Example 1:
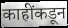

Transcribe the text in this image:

काहींकडून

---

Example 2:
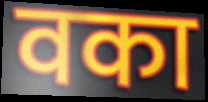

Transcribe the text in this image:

वका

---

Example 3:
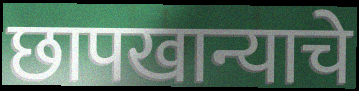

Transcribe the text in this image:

छापखान्याचे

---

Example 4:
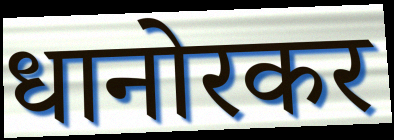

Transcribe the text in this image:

धानोरकर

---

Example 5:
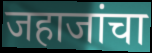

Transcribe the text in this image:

जहाजांचा